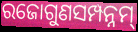
ରଜୋଗୁଣସମ୍ପନ୍ନମ୍